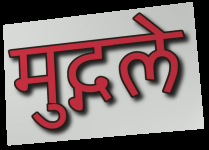
मुद्गले